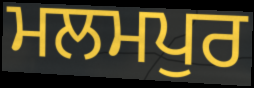
ਮਲਮਪੁਰ